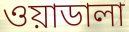
ওয়াডালা